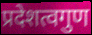
प्रदेशत्वगुण